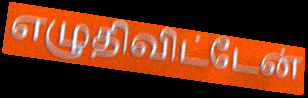
எழுதிவிட்டேன்